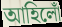
আহিলোঁ